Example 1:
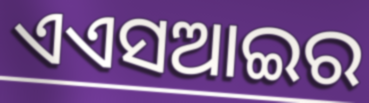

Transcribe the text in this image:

ଏଏସଆଇର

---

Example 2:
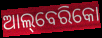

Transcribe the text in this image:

ଆଲ୍‌ବେରିକୋ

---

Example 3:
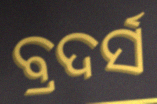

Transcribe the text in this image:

ବ୍ରଦର୍ସ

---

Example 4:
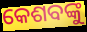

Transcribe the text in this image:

କେଶବଙ୍କୁ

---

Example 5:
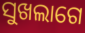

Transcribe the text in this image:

ସୁଖଲାଗେ